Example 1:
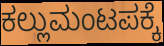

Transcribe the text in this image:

ಕಲ್ಲುಮಂಟಪಕ್ಕೆ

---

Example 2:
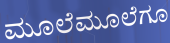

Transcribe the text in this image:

ಮೂಲೆಮೂಲೆಗೂ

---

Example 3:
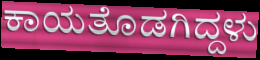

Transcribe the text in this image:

ಕಾಯತೊಡಗಿದ್ದಳು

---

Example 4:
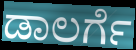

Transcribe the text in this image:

ಡಾಲರ್ಗೆ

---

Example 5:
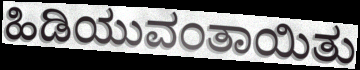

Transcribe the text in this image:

ಹಿಡಿಯುವಂತಾಯಿತು